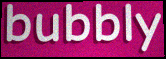
bubbly